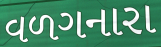
વળગનારા